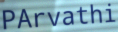
PArvathi